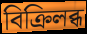
বিক্রিলব্ধ